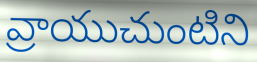
వ్రాయుచుంటిని